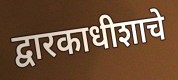
द्वारकाधीशाचे